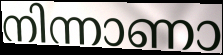
നിന്നാണാ